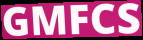
GMFCS